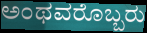
ಅಂಥವರೊಬ್ಬರು